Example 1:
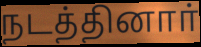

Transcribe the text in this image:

நடத்தினார்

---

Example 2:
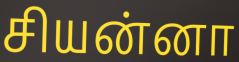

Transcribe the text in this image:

சியன்னா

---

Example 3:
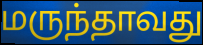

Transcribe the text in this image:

மருந்தாவது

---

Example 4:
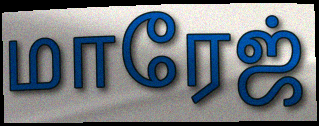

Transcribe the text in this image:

மாரேஜ்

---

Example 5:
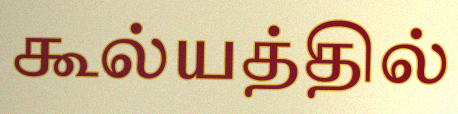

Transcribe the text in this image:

கூல்யத்தில்